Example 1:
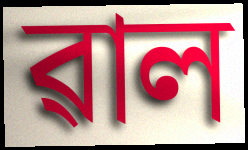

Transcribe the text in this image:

ৱাল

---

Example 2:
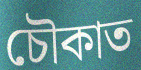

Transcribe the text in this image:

চৌকাত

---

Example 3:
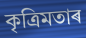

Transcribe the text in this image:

কৃত্ৰিমতাৰ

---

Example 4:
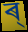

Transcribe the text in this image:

ৰ্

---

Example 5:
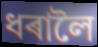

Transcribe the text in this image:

ধৰালৈ